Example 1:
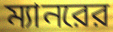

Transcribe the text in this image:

ম্যানরের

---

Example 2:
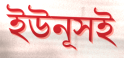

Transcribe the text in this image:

ইউনূসই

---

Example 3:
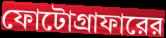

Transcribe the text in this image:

ফোটোগ্রাফারের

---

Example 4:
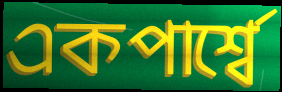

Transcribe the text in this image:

একপার্শ্বে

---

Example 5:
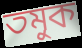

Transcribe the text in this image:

তমুক